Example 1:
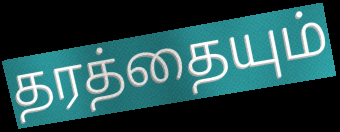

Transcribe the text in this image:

தரத்தையும்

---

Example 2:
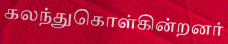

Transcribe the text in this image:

கலந்துகொள்கின்றனர்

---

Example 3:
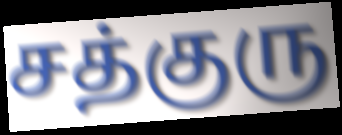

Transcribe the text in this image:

சத்குரு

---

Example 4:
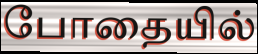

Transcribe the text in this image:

போதையில்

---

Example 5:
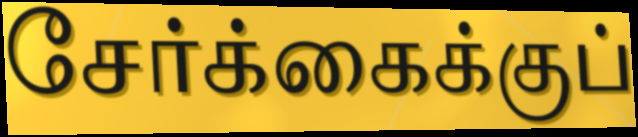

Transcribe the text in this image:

சேர்க்கைக்குப்